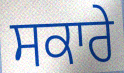
ਸਕਾਰੇ